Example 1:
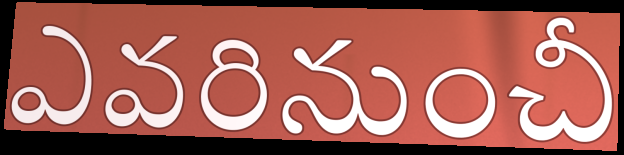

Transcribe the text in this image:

ఎవరినుంచీ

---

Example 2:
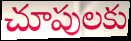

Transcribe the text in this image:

చూపులకు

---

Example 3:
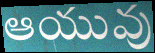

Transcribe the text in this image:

ఆయువు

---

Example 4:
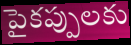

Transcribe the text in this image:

పైకప్పులకు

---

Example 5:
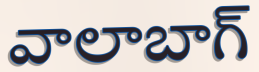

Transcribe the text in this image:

వాలాబాగ్